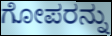
ಗೋಪರನ್ನು